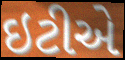
ઇટીએ